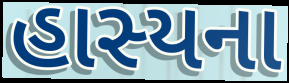
હાસ્યના